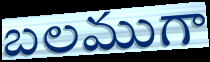
బలముగా